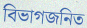
বিভাগজনিত